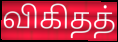
விகிதத்